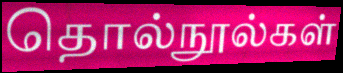
தொல்நூல்கள்